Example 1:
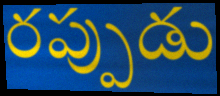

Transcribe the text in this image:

రప్పుడు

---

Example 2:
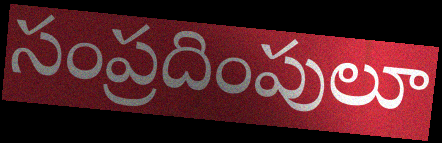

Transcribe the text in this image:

సంప్రదింపులూ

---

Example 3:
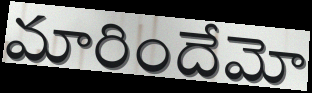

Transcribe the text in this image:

మారిందేమో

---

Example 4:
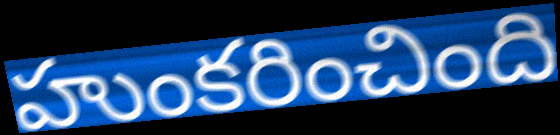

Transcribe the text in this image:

హుంకరించింది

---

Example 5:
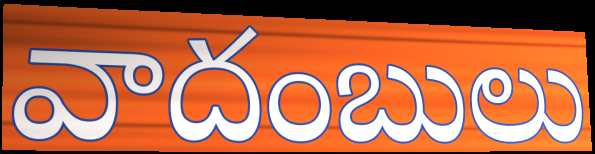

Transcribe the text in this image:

వాదంబులు